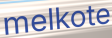
melkote